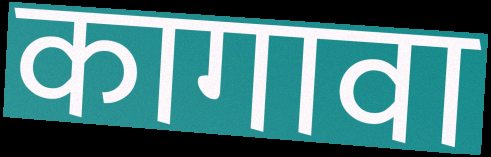
कागावा